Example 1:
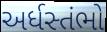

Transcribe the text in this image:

અર્ધસ્તંભો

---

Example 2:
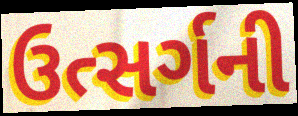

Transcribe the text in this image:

ઉત્સર્ગની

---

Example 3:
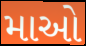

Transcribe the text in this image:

માઓ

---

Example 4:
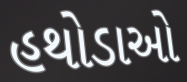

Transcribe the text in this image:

હથોડાઓ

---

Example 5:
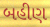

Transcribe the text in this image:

બહીણ